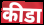
कीडा